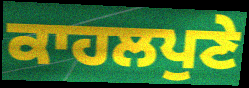
ਕਾਹਲਪੁਣੇ